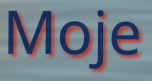
Moje